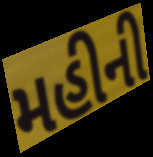
મહીની